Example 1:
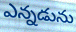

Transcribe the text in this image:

ఎన్నడును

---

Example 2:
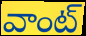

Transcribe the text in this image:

వాంట్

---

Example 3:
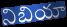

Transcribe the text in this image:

నిబియా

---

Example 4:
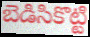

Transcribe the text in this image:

బెడిసికొట్టి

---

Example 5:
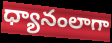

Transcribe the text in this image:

ధ్యానంలాగా